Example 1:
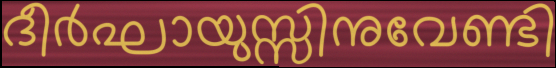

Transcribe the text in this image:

ദീർഘായുസ്സിനുവേണ്ടി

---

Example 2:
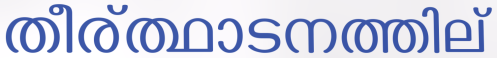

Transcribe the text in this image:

തീര്ത്ഥാടനത്തില്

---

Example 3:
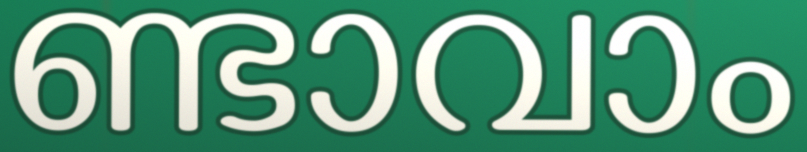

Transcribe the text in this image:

ണ്ടാവാം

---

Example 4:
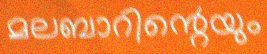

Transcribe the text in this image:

മലബാറിന്റെയും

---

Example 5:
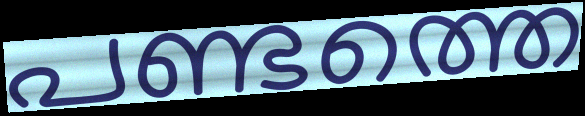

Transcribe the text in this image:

പണ്ടത്തെ